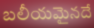
బలీయమైనదే